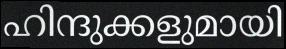
ഹിന്ദുക്കളുമായി